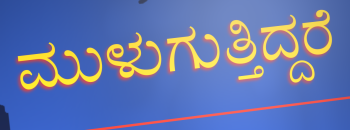
ಮುಳುಗುತ್ತಿದ್ದರೆ